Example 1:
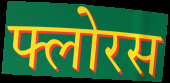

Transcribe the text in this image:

फ्लोरस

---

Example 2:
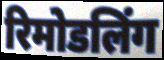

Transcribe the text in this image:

रिमोडलिंग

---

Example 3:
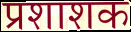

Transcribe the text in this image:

प्रशाशक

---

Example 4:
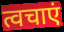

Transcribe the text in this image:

त्वचाएं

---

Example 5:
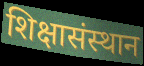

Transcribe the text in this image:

शिक्षासंस्थान